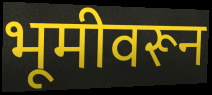
भूमीवरून